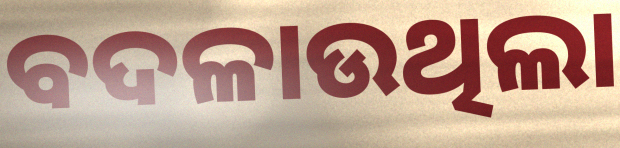
ବଦଳାଉଥିଲା